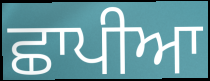
ਛਾਪੀਆ